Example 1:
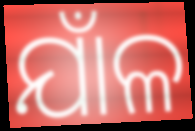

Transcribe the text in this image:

ଯାଁଳ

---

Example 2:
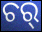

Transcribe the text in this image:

ଚର୍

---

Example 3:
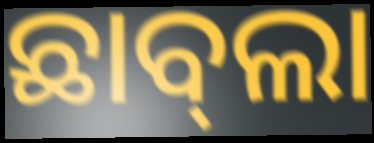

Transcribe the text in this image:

ଛାବ୍‍ଲା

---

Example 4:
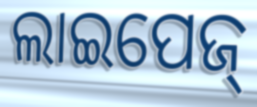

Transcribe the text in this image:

ଲାଇପେଜ୍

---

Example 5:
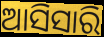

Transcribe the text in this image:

ଆସିସାରି